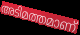
അടിമത്തമാണ്